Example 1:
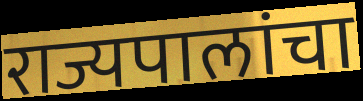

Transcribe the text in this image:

राज्यपालांचा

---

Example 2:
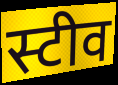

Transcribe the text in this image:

स्टीव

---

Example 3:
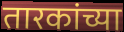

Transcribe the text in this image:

तारकांच्या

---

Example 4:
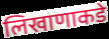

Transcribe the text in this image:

लिखाणाकडे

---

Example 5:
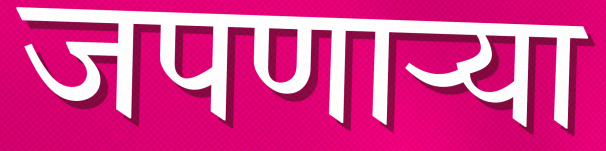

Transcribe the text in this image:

जपणाऱ्या